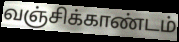
வஞ்சிக்காண்டம்